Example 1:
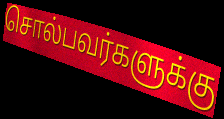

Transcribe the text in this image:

சொல்பவர்களுக்கு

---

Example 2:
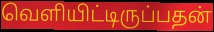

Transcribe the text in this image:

வெளியிட்டிருப்பதன்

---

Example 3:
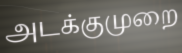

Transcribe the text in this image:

அடக்குமுறை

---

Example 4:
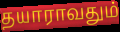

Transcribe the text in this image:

தயாராவதும்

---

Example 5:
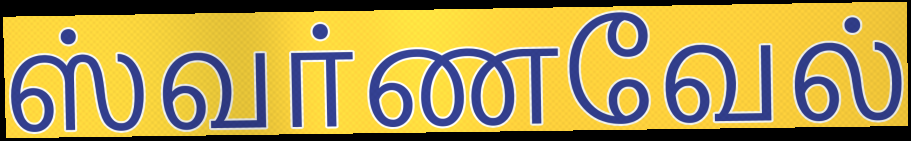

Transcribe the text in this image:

ஸ்வர்ணவேல்